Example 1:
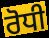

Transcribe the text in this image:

ਰੋਧੀ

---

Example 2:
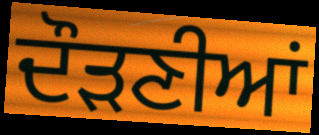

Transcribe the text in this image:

ਦੌੜਣੀਆਂ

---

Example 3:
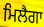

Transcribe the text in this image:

ਮਿਲੈਗਾ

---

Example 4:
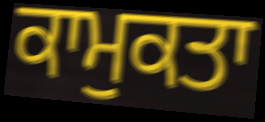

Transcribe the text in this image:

ਕਾਮੁਕਤਾ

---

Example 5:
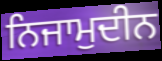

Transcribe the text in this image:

ਨਿਜਾਮੁਦੀਨ